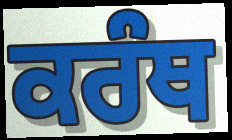
ਕਰੰਥ